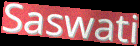
Saswati